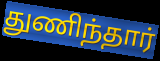
துணிந்தார்